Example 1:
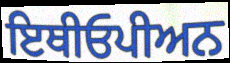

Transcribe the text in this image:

ਇਥੀਓਪੀਅਨ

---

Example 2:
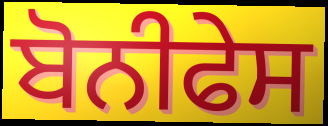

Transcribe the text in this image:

ਬੋਨੀਫੇਸ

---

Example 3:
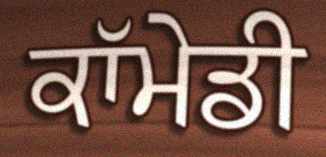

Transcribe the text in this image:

ਕਾੱਮੇਡੀ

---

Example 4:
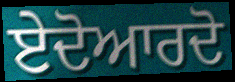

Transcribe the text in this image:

ਏਦੋਆਰਦੋ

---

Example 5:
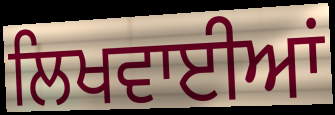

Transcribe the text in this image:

ਲਿਖਵਾਈਆਂ